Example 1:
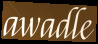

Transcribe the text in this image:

awadle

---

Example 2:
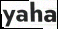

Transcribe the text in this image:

yaha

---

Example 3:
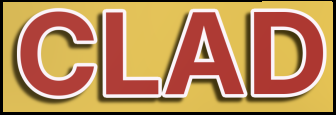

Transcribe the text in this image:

CLAD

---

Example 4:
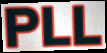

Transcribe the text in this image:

PLL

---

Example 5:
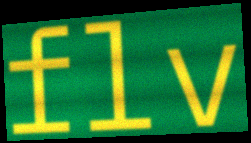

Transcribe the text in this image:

flv